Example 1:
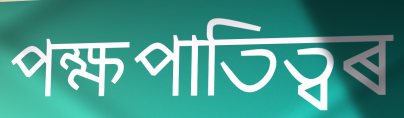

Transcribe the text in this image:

পক্ষপাতিত্বৰ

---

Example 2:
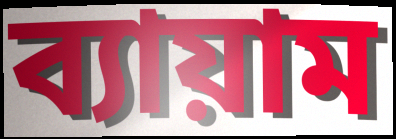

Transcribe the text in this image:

ব্যায়াম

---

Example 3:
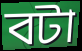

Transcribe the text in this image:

বটা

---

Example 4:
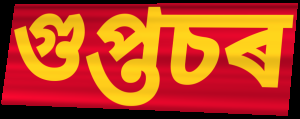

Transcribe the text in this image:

গুপ্তচৰ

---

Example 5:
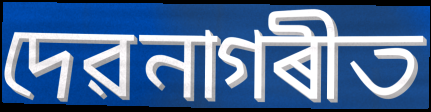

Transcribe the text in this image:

দেৱনাগৰীত